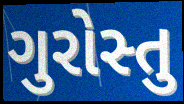
ગુરોસ્તુ